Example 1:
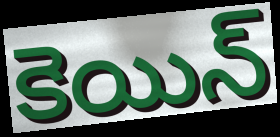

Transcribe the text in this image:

కెయిన్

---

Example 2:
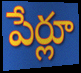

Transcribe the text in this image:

పేర్లూ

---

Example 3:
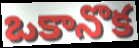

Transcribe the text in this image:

ఒకానొక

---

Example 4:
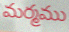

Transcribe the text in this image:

మర్మము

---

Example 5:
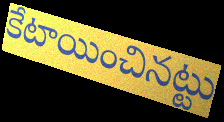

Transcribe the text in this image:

కేటాయించినట్టు